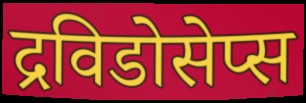
द्रविडोसेप्स